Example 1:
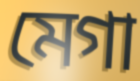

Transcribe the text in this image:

মেগা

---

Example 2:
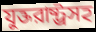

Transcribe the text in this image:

যুক্তরাষ্ট্রসহ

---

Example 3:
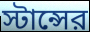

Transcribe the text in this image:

স্টান্সের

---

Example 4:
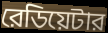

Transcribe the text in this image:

রেডিয়েটার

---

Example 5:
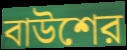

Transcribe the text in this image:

বাউশের